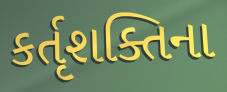
કર્તૃશક્તિના